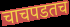
चाचपडतच